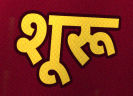
शूरू